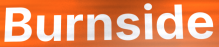
Burnside